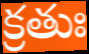
క్రతుః